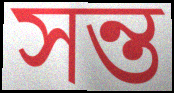
সন্ত